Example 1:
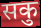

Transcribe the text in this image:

सकु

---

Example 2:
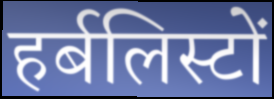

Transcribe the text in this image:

हर्बलिस्टों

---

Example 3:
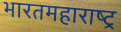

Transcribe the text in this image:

भारतमहाराष्ट्र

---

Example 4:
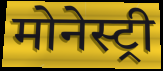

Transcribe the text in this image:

मोनेस्‍ट्री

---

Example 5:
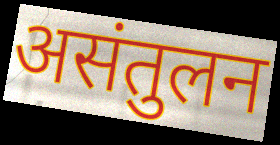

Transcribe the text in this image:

असंतुलन